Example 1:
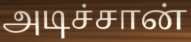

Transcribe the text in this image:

அடிச்சான்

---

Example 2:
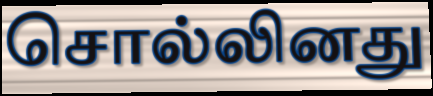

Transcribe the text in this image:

சொல்லினது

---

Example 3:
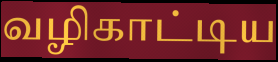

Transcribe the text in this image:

வழிகாட்டிய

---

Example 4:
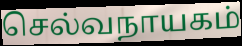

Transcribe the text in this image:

செல்வநாயகம்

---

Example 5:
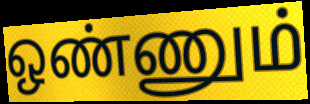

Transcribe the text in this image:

ஒண்ணும்